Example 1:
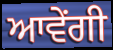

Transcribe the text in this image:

ਆਵੇਂਗੀ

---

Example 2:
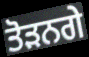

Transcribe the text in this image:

ਤੋੜਨਗੇ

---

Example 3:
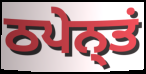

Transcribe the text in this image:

ਠਪੇਨ੍ਤਂ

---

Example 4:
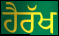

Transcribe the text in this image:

ਹੈਰੱਖ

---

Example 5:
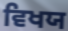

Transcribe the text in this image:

ਵਿਖਯ